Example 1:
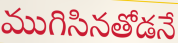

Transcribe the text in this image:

ముగిసినతోడనే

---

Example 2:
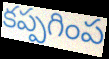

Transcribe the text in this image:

కప్పగింప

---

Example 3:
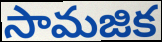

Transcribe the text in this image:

సామజిక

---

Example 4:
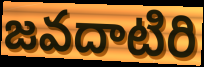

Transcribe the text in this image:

జవదాటిరి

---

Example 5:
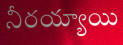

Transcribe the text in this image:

నీరయ్యాయి